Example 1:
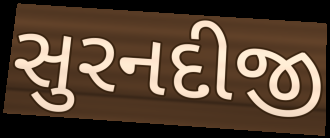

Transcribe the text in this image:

સુરનદીજી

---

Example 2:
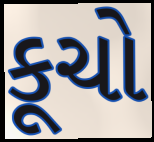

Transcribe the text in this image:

કૂચો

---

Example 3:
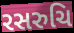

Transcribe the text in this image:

રસરુચિ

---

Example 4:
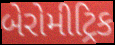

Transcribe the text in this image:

બેરોમીટ્રિક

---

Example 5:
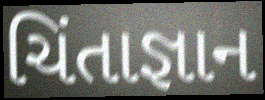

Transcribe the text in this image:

ચિંતાજ્ઞાન